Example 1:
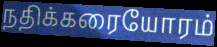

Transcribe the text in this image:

நதிக்கரையோரம்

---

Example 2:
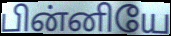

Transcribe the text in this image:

பின்னியே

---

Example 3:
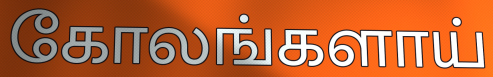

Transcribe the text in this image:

கோலங்களாய்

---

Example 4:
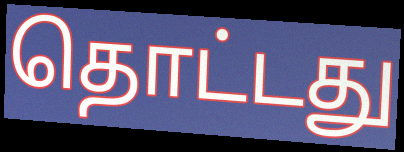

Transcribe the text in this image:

தொட்டது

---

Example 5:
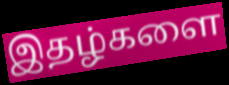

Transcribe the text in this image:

இதழ்களை